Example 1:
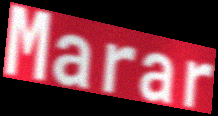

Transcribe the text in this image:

Marar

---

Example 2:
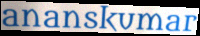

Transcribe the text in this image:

ananskumar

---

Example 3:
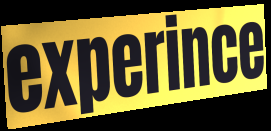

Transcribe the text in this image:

experince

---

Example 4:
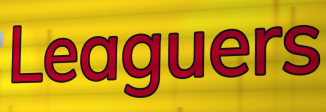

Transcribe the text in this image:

Leaguers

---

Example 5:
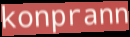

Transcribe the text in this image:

konprann